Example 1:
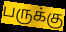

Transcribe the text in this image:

பருக்கு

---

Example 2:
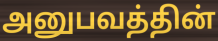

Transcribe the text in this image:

அனுபவத்தின்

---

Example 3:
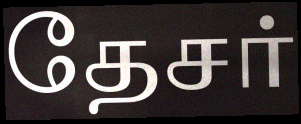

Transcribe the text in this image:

தேசர்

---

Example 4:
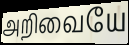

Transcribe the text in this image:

அறிவையே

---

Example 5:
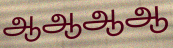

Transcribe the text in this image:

ஆஆஆஆ